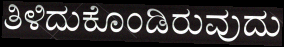
ತಿಳಿದುಕೊಂಡಿರುವುದು